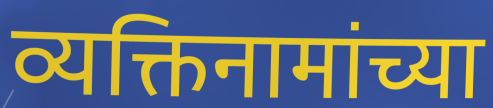
व्यक्तिनामांच्या